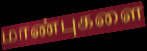
மாண்புகளை